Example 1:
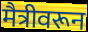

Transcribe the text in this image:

मैत्रीवरून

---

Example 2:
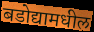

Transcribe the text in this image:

बडोद्यामधील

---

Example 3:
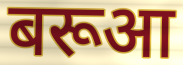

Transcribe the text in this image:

बरूआ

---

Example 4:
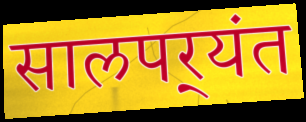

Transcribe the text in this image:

सालपर्यंत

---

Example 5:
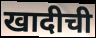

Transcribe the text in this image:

खादीची